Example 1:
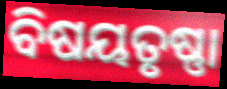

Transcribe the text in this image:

ବିଷୟତୃଷ୍ଣା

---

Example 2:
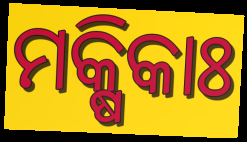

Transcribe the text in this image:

ମକ୍ଷିକାଃ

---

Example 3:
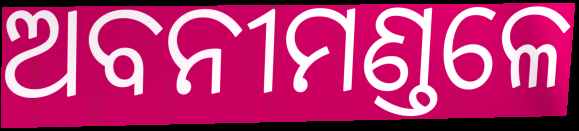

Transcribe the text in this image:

ଅବନୀମଣ୍ଡଳେ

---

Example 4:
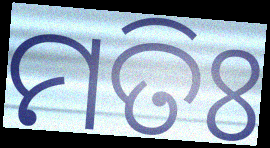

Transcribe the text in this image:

ମତିଃ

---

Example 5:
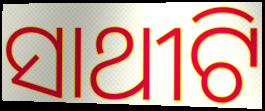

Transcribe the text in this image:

ସାଥୀଟି